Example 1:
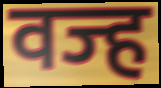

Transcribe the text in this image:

वज्ह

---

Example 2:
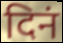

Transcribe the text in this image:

दिनं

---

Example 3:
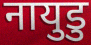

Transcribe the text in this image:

नायुडु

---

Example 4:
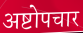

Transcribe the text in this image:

अष्टोपचार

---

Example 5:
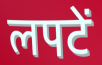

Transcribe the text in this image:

लपटें